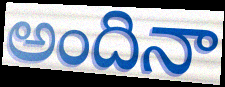
అందినా